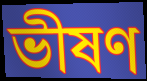
ভীষণ